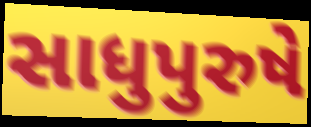
સાધુપુરુષે